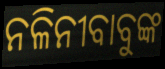
ନଳିନୀବାବୁଙ୍କ